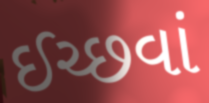
ઈચ્છવાં